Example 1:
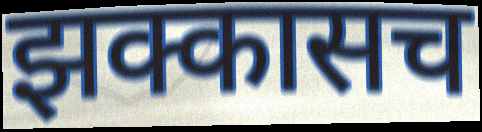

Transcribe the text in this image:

झक्कासच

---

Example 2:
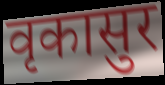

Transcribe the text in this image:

वृकासुर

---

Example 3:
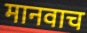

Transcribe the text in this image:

मानवाच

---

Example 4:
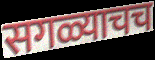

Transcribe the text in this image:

सगळ्याचच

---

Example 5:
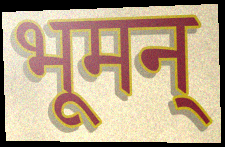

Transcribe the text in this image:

भूमन्